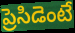
ప్రెసిడెంటే